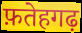
फ़तेहगढ़